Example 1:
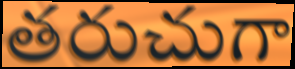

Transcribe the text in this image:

తరుచుగా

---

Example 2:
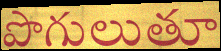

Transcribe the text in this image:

పొగులుతూ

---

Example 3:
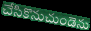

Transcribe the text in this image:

చేసికొనుచుండెను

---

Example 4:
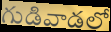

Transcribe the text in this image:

గుడివాడలో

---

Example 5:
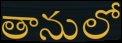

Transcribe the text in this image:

తానులో